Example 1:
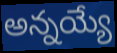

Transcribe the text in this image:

అన్నయ్యే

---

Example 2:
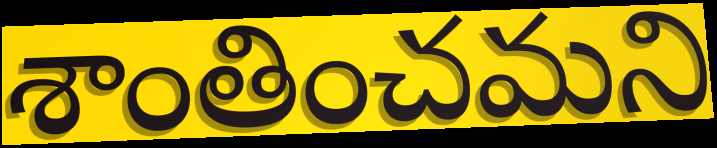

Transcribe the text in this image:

శాంతించమని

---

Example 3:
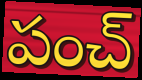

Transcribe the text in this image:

పంచ్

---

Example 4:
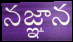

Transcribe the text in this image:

నజ్ఞాన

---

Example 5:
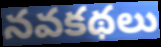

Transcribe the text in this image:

నవకథలు